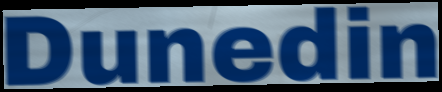
Dunedin